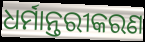
ଧର୍ମାନ୍ତରୀକରଣ